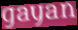
gayan